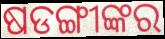
ଷଡଙ୍ଗୀଙ୍କର